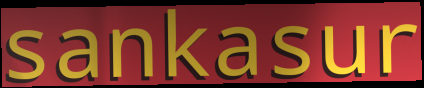
sankasur